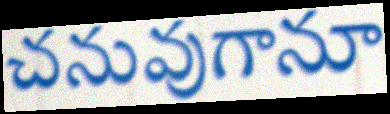
చనువుగానూ